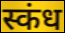
स्कंध